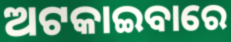
ଅଟକାଇବାରେ